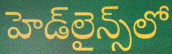
హెడ్‌లైన్స్‌లో